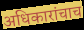
अधिकारांचाच